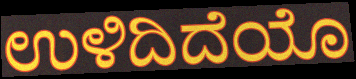
ಉಳಿದಿದೆಯೊ